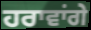
ਹਰਾਵਾਂਗੇ